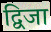
द्विजा